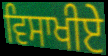
ਵਿਸਾਖੀਏੇ